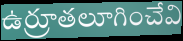
ఉర్రూతలూగించేవి